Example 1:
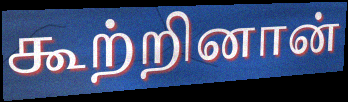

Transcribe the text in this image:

கூற்றினான்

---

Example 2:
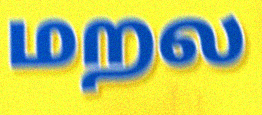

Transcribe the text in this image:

மறல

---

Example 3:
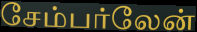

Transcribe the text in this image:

சேம்பர்லேன்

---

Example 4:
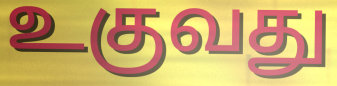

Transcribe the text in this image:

உகுவது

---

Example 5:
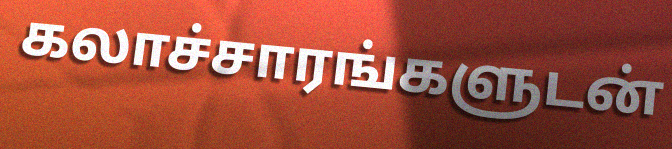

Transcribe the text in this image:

கலாச்சாரங்களுடன்